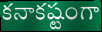
కనాకష్టంగా